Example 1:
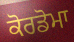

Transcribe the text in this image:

ਕੋਰਡੋਮਾ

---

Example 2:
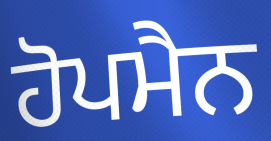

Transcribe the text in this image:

ਹੋਪਮੈਨ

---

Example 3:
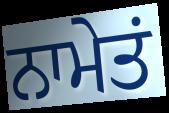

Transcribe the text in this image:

ਨਾਮੇਤਂ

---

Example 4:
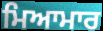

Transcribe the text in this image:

ਮਿਆਮਾਰ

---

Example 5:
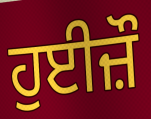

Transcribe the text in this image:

ਹੁਈਜ਼ੌ